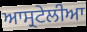
ਆਸ੍ਰਟੇਲੀਆ